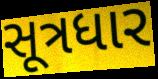
સૂત્રધાર